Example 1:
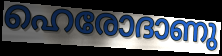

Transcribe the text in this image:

ഹെരോദാണു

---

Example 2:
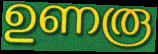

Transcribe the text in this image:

ഉണരൂ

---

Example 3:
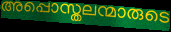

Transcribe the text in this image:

അപ്പൊസ്തലന്മാരുടെ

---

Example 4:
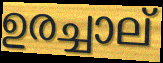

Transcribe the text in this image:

ഉരച്ചാല്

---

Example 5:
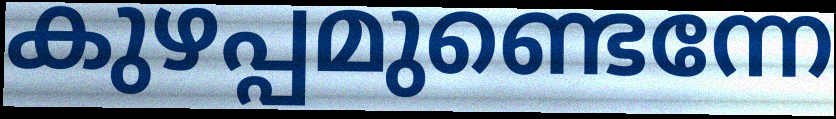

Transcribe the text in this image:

കുഴപ്പമുണ്ടെന്നേ